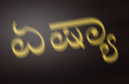
ಏಷ್ಯಾ